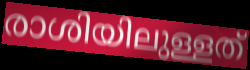
രാശിയിലുള്ളത്